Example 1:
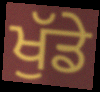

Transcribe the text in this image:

ਖੁੱਡੇ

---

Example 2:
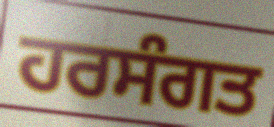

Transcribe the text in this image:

ਹਰਸੰਗਤ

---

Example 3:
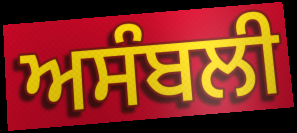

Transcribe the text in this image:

ਅਸੰਬਲੀ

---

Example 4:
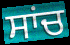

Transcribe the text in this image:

ਸਾਂਚ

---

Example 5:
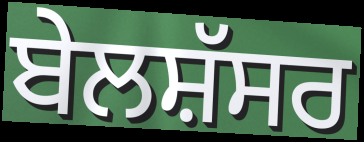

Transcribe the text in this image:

ਬੇਲਸ਼ੱਸਰ